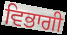
ਵਿਭਾਗੀ